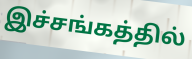
இச்சங்கத்தில்